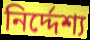
নির্দ্দেশ্য